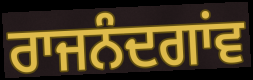
ਰਾਜਨੰਦਗਾਂਵ